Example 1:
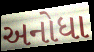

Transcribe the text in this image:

અનોધા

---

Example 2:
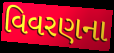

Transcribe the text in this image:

વિવરણના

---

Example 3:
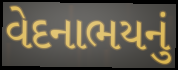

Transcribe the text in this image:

વેદનાભયનું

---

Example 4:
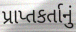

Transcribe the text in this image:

પ્રાપ્તકર્તાનું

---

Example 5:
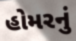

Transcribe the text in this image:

હોમરનું